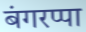
बंगरप्पा